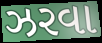
ઝરવા